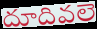
దూదివలె